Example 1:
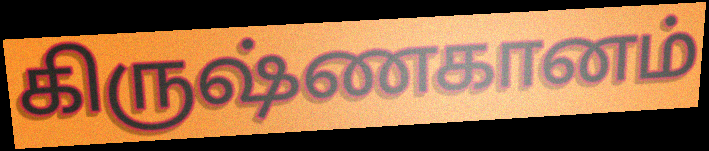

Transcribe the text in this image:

கிருஷ்ணகானம்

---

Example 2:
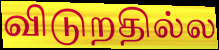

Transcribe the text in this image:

விடுறதில்ல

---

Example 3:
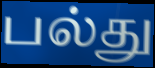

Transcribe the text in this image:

பல்து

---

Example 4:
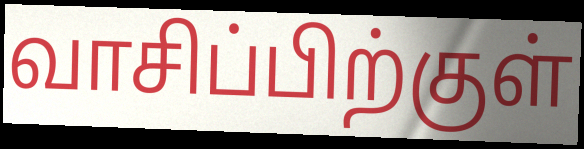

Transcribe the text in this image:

வாசிப்பிற்குள்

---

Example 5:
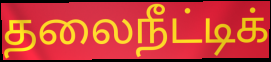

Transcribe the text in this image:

தலைநீட்டிக்